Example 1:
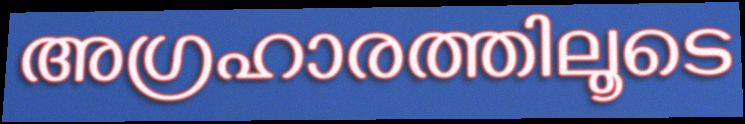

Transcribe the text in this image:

അഗ്രഹാരത്തിലൂടെ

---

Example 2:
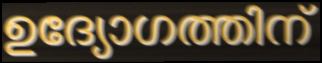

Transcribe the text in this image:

ഉദ്യോഗത്തിന്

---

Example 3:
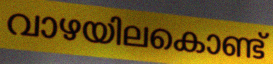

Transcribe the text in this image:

വാഴയിലകൊണ്ട്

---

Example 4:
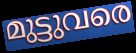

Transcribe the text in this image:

മുട്ടുവരെ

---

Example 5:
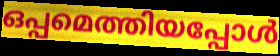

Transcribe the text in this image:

ഒപ്പമെത്തിയപ്പോൾ